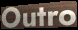
Outro